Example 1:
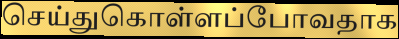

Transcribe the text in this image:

செய்துகொள்ளப்போவதாக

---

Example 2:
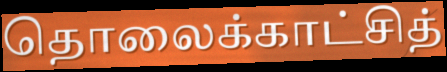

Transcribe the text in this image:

தொலைக்காட்சித்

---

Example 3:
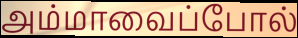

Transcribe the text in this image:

அம்மாவைப்போல்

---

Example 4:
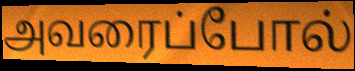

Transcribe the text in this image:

அவரைப்போல்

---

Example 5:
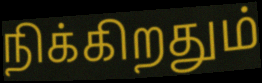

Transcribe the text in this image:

நிக்கிறதும்